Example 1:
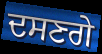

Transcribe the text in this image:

ਦਸਣਗੇ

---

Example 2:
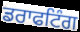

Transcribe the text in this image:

ਡਰਾਫਟਿੰਗ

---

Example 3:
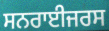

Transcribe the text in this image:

ਸਨਰਾਈਜਰਸ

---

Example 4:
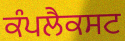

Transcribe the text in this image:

ਕੰਪਲੈਕਸਟ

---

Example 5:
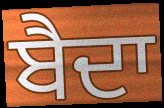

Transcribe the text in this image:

ਬੈਦਾ